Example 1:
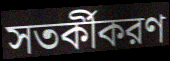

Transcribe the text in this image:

সতর্কীকরণ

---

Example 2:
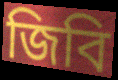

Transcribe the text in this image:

জিবি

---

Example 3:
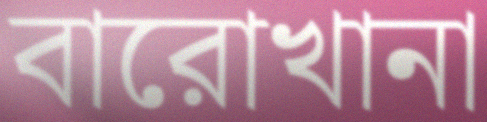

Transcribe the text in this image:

বারোখানা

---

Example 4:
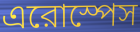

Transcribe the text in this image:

এরোস্পেস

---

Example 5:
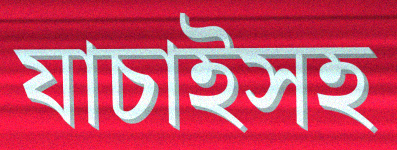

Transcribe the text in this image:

যাচাইসহ